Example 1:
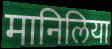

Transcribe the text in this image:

मानिलिया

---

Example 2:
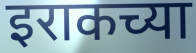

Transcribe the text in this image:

इराकच्या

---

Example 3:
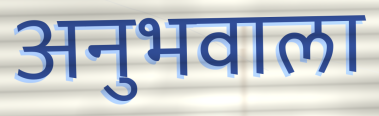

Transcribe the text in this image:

अनुभवाला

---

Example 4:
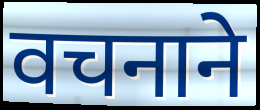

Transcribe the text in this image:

वचनाने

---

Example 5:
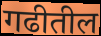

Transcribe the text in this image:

गढीतील